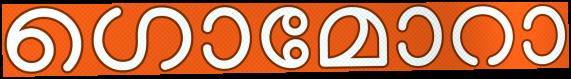
ഗൊമോറാ